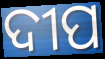
ଦୀପ